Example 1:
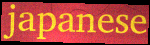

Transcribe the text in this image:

japanese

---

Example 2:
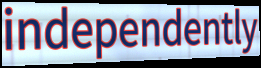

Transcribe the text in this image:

independently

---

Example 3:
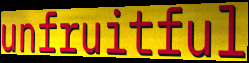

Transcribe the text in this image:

unfruitful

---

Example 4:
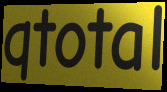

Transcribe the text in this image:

qtotal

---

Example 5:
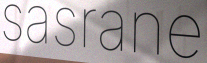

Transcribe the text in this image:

sasrane